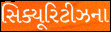
સિક્યૂરિટીઝના